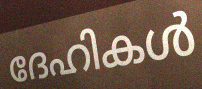
ദേഹികൾ